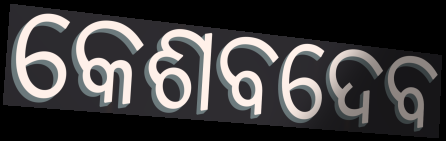
କେଶବଦେବ